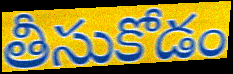
తీసుకోడం